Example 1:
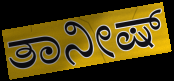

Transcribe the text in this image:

ತಾನೀಷ್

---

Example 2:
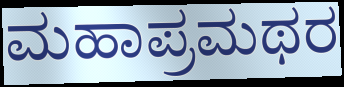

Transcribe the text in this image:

ಮಹಾಪ್ರಮಥರ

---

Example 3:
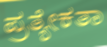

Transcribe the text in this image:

ಪ್ರತ್ಯೇಕತಾ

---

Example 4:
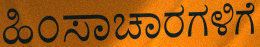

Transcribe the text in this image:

ಹಿಂಸಾಚಾರಗಳಿಗೆ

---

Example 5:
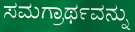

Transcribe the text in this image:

ಸಮಗ್ರಾರ್ಥವನ್ನು